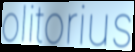
olitorius